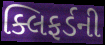
ક્લિફર્ડની